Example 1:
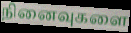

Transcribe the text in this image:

நினைவுகளை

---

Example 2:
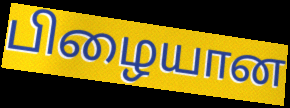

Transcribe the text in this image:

பிழையான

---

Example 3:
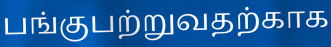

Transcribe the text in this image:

பங்குபற்றுவதற்காக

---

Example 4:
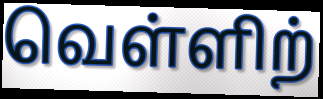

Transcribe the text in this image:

வெள்ளிற்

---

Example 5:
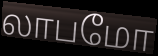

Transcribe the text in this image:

லாபமோ